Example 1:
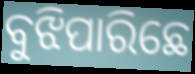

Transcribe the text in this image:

ବୁଝିପାରିଛେ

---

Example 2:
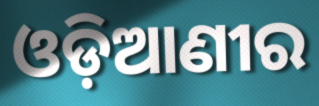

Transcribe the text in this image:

ଓଡ଼ିଆଣୀର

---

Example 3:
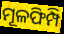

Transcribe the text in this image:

ମୂଳଫିମ୍ପି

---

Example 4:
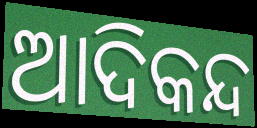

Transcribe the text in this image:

ଆଦିକନ୍ଦ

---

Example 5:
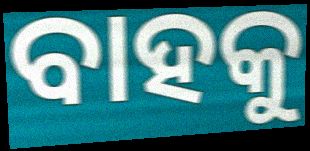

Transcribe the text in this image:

ବାହକୁ